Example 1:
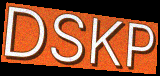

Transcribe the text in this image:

DSKP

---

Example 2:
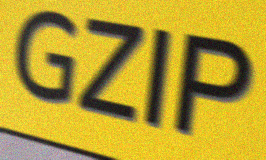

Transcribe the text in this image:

GZIP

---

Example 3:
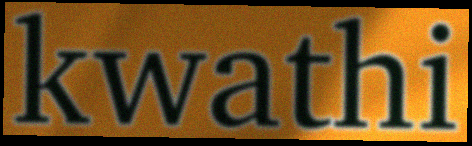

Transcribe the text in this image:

kwathi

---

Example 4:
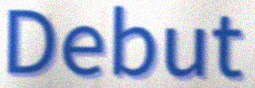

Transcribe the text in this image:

Debut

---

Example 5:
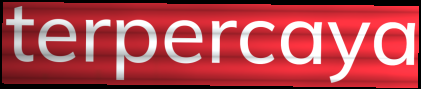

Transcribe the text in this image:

terpercaya